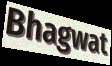
Bhagwat